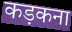
कड़कना